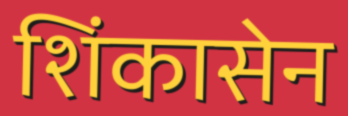
शिंकासेन